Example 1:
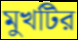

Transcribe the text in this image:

মুখটির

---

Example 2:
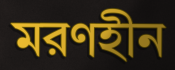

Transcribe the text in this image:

মরণহীন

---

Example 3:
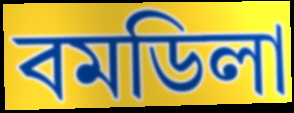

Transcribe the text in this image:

বমডিলা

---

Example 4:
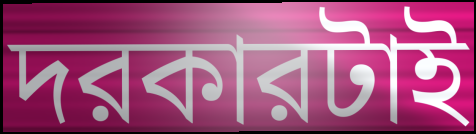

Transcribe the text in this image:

দরকারটাই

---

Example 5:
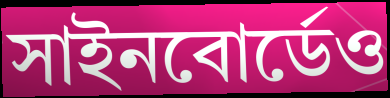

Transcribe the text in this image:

সাইনবোর্ডেও